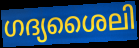
ഗദ്യശൈലി